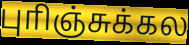
புரிஞ்சுக்கல